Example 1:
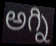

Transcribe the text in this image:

అగ్ని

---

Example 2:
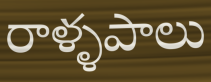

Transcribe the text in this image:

రాళ్ళపాలు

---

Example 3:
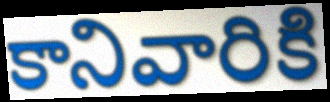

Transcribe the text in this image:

కానివారికి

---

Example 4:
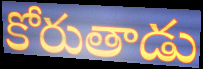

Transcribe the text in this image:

కోరుతాడు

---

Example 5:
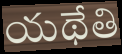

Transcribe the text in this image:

యథేతి